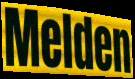
Melden